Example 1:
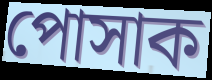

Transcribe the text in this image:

পোসাক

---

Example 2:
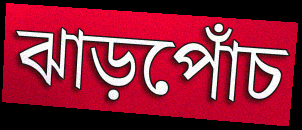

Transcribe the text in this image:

ঝাড়পোঁচ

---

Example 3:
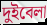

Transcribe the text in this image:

দুইবেলা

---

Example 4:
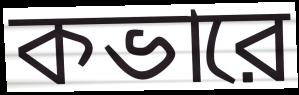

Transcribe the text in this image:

কভারে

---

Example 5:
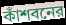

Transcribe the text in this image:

কাঁশবনের